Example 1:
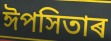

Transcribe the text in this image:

ঈপসিতাৰ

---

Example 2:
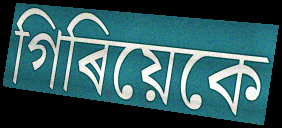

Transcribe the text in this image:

গিৰিয়েকে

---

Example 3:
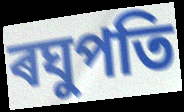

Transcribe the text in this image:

ৰঘুপতি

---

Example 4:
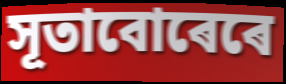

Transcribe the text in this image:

সূতাবোৰেৰে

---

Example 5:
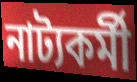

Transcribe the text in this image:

নাট্যকৰ্মী